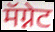
मॅग्नेट